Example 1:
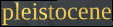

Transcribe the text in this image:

pleistocene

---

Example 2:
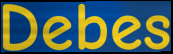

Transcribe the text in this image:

Debes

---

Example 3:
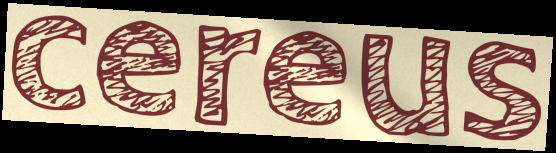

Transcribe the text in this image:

cereus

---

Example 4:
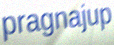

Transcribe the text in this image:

pragnajup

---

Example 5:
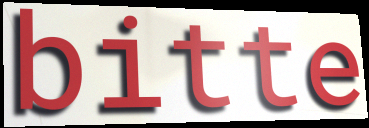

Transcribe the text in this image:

bitte